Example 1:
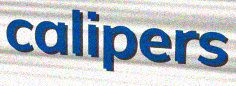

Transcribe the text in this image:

calipers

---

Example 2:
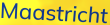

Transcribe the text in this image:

Maastricht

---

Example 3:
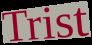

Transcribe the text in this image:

Trist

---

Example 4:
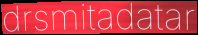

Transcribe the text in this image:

drsmitadatar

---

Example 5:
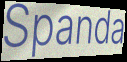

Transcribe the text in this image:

Spanda